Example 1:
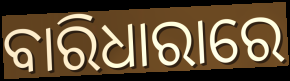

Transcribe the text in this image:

ବାରିଧାରାରେ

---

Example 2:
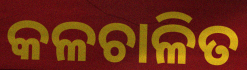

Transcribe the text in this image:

କଳଚାଳିତ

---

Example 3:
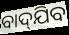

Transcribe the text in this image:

ବାଦ୍‌ଯିବ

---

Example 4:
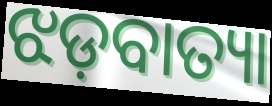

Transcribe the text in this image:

ଝଡ଼ବାତ୍ୟା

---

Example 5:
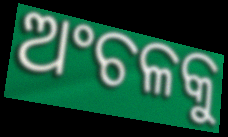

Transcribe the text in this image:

ଅଂଚଳକୁ